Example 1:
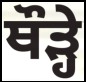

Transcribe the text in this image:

ਥੌੜ੍ਹੇ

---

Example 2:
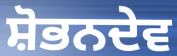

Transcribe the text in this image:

ਸ਼ੋਭਨਦੇਵ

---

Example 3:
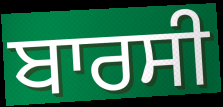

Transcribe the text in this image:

ਬਾਰਸੀ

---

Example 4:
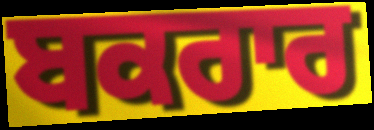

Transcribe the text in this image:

ਬਕਰਾਰ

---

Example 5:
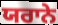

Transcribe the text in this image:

ਯਰਾਨੇ